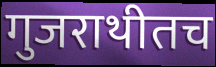
गुजराथीतच